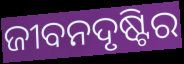
ଜୀବନଦୃଷ୍ଟିର